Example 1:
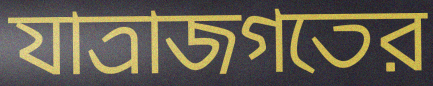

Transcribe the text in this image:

যাত্রাজগতের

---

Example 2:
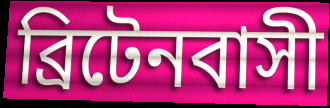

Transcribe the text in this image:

ব্রিটেনবাসী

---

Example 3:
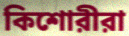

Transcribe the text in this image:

কিশোরীরা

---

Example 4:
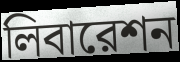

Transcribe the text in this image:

লিবারেশন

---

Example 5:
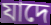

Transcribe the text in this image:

যাদে